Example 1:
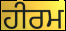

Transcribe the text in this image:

ਹੀਰਮ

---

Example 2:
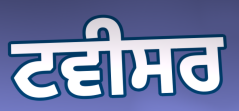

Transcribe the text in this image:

ਟਵੀਸਰ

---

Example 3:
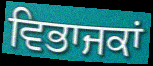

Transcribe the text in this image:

ਵਿਭਾਜਕਾਂ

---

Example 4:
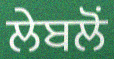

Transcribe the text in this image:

ਲੇਬਲੋਂ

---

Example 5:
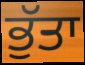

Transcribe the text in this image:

ਭੁੱਤਾ